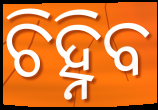
ଚିହ୍ନିବ